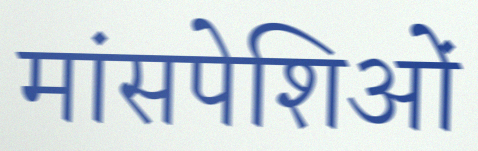
मांसपेशिओं